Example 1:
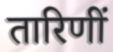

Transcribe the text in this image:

तारिणीं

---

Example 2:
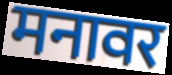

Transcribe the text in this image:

मनावर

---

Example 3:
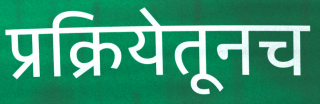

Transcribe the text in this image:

प्रक्रियेतूनच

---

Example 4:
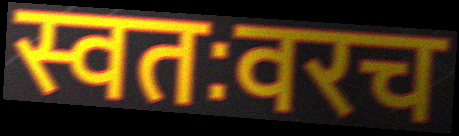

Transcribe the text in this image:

स्वतःवरच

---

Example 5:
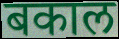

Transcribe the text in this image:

बकाल